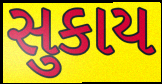
સુકાય